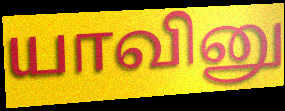
யாவினு